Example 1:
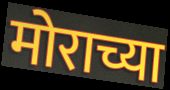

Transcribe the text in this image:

मोराच्या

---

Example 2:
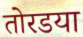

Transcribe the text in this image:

तोरडया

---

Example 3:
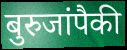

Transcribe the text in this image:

बुरुजांपैकी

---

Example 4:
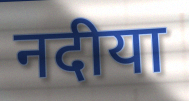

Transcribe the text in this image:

नदीया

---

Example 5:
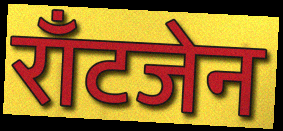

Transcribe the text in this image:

राँटजेन